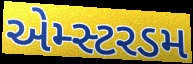
એમ્સ્ટરડમ